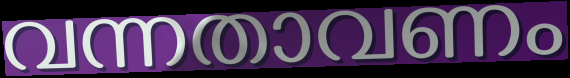
വന്നതാവണം